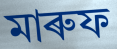
মাৰুফ